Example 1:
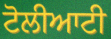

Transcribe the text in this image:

ਟੋਲੀਆਟੀ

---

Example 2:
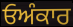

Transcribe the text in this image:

ਓਅੰਕਾਰ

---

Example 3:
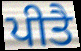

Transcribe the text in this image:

ਪੀਤੈ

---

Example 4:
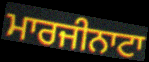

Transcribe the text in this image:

ਮਾਰਜੀਨਾਟਾ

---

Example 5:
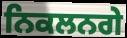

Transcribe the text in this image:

ਨਿਕਲਨਗੇ